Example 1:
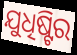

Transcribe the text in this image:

ଯୁଧିଷ୍ଟିର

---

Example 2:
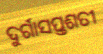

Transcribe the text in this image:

ଦୁର୍ଗାସପ୍ତଶତୀ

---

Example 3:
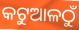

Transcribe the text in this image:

କଟୁଆଳଠୁଁ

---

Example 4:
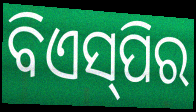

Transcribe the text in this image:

ବିଏସ୍‌ପିର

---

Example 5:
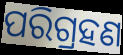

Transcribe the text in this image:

ପରିଗ୍ରହଣ